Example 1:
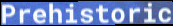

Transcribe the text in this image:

Prehistoric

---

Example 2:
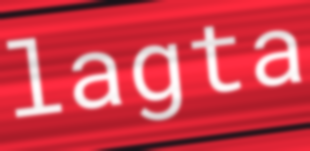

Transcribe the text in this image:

lagta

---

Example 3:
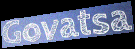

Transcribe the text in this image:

Govatsa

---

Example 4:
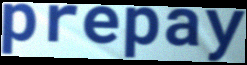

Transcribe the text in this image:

prepay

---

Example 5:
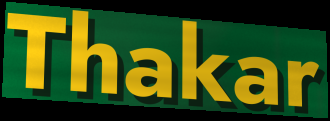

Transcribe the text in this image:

Thakar